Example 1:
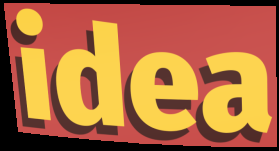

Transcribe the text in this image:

idea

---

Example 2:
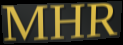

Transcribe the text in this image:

MHR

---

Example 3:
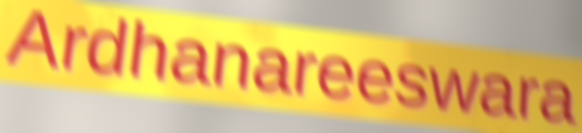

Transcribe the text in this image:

Ardhanareeswara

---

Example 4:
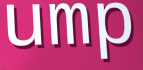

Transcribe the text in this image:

ump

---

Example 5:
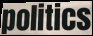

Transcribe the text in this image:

politics